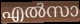
എൽസാ